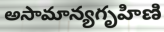
అసామాన్యగృహిణి